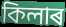
কিলাৰ